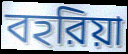
বহরিয়া